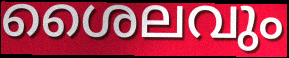
ശൈലവും